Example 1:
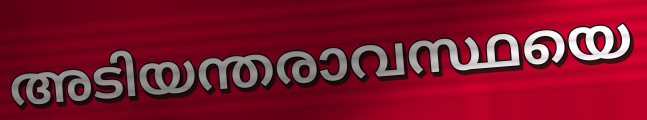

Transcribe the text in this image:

അടിയന്തരാവസ്ഥയെ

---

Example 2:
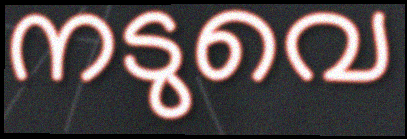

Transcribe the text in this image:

നടുവെ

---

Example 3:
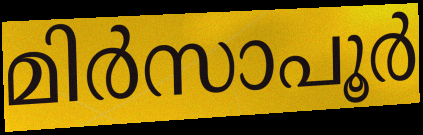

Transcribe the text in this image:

മിർസാപൂർ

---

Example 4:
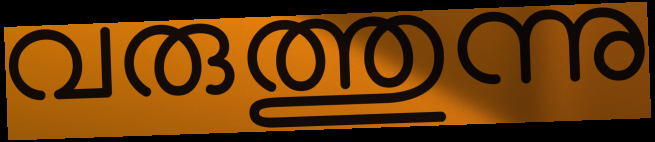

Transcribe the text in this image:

വരുത്തുന്നു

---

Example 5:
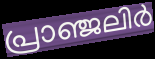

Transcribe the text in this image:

പ്രാഞ്ജലിർ